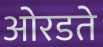
ओरडते